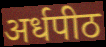
अर्धपीठ